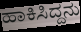
ಹಾಕಿಸಿದ್ದನು